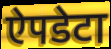
ऐपडेटा